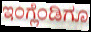
ಇಂಗ್ಲೆಂಡಿಗೂ